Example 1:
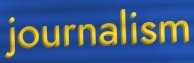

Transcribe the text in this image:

journalism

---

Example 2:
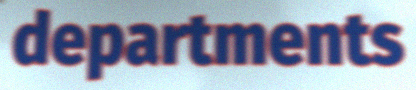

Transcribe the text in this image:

departments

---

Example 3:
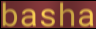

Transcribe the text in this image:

basha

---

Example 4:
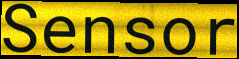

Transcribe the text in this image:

Sensor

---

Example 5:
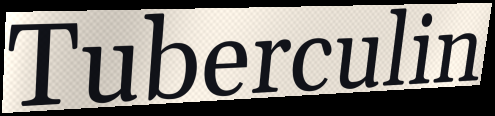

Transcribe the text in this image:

Tuberculin